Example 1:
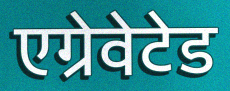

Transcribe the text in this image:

एग्रेवेटेड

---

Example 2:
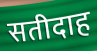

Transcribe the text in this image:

सतीदाह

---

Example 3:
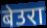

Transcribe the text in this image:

बेउरा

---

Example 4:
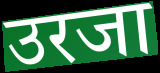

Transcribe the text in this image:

उरजा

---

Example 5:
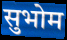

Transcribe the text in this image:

सुभोम